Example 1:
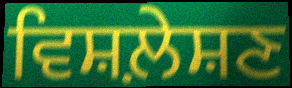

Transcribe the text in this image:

ਵਿਸ਼ਲ਼ੇਸ਼ਣ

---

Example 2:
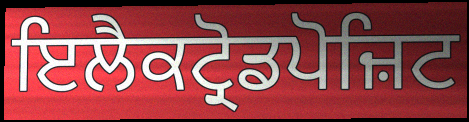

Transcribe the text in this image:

ਇਲੈਕਟ੍ਰੋਡਪੋਜ਼ਿਟ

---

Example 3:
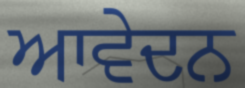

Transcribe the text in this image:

ਆਵੇਦਨ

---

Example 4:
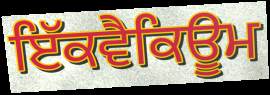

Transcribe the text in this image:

ਇੱਕਵੈਕਿਊਮ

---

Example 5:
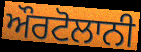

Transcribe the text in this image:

ਔਰਟੋਲਾਨੀ